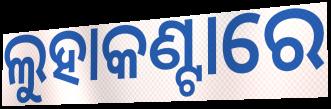
ଲୁହାକଣ୍ଟାରେ